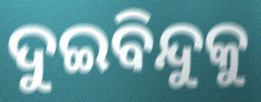
ଦୁଇବିନ୍ଦୁକୁ